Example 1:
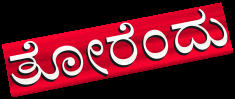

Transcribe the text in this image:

ತೋರೆಂದು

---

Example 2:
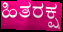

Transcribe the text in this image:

ಹಿತರಕ್ಷ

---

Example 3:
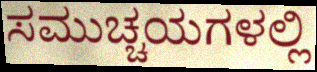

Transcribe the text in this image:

ಸಮುಚ್ಚಯಗಳಲ್ಲಿ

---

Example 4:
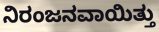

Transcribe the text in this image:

ನಿರಂಜನವಾಯಿತ್ತು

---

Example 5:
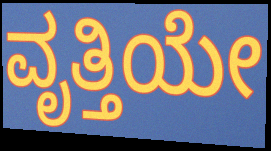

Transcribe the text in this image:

ವೃತ್ತಿಯೇ